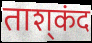
ताश्कंद